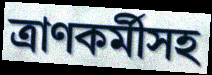
ত্রাণকর্মীসহ